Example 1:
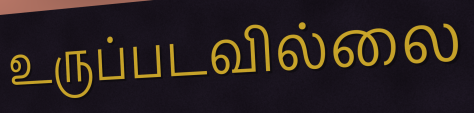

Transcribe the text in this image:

உருப்படவில்லை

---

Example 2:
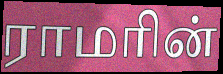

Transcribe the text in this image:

ராமரின்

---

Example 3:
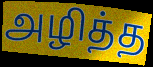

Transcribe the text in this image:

அழித்த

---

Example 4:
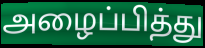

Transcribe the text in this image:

அழைப்பித்து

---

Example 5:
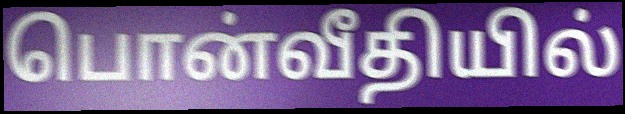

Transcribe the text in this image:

பொன்வீதியில்